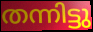
തന്നിട്ടു